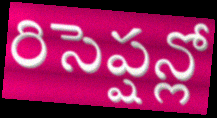
రిసెప్షన్లో